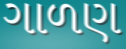
ગાળણ